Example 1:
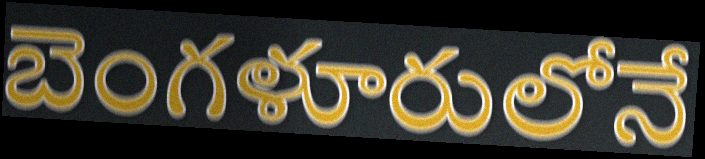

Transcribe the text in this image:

బెంగళూరులోనే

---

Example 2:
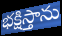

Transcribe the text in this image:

భక్షిస్తాను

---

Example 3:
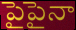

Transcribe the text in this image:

పైపైనా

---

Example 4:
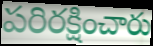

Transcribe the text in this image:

పరిరక్షించారు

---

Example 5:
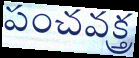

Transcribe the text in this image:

పంచవక్త్ర